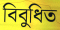
বিবুধিত